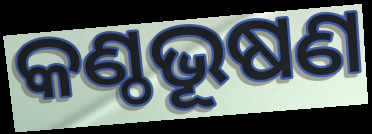
କଣ୍ଠଭୂଷଣ